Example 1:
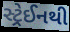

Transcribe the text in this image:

સ્ટ્રેઈનથી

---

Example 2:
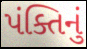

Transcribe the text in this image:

પંક્તિનું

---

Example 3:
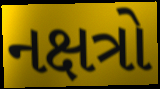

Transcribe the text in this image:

નક્ષત્રો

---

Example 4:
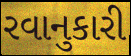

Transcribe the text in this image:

રવાનુકારી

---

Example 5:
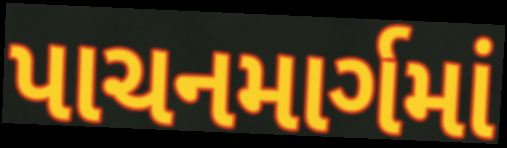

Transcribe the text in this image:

પાચનમાર્ગમાં